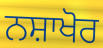
ਨਸ਼ਾਖੋਰ